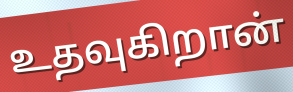
உதவுகிறான்